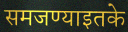
समजण्याइतके